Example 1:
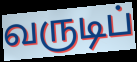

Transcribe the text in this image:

வருடிப்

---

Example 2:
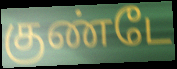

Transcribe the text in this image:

குண்டே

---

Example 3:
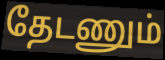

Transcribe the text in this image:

தேடணும்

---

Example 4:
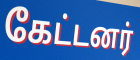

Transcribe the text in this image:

கேட்டனர்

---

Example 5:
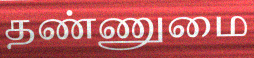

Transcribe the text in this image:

தண்ணுமை